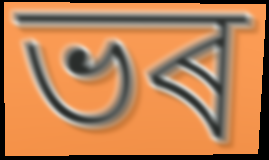
ভৰ